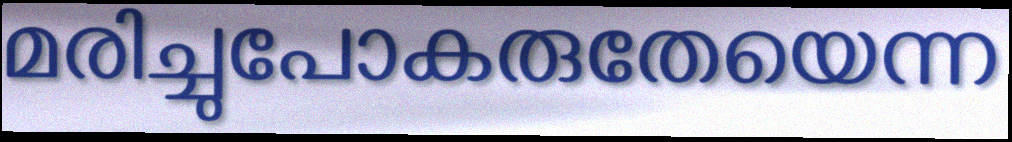
മരിച്ചുപോകരുതേയെന്ന